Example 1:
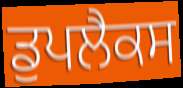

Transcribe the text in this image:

ਡੁਪਲੈਕਸ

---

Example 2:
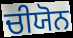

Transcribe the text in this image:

ਚੀਯੋਨ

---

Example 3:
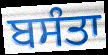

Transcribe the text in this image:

ਬਸੰਤਾ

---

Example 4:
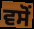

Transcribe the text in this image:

ਵਸੋਂ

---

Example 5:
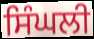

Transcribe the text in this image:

ਸਿੰਘਲੀ